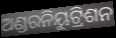
ଅଣ୍ଡରନିୟୁଟ୍ରିଶନ